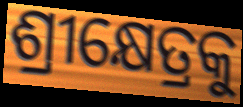
ଶ୍ରୀକ୍ଷେତ୍ରକୁ